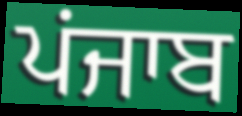
ਪਂਜਾਬ